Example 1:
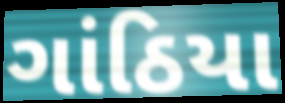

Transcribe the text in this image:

ગાંઠિયા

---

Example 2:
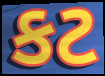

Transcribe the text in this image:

કટ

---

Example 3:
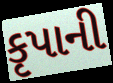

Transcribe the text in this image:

કૃપાની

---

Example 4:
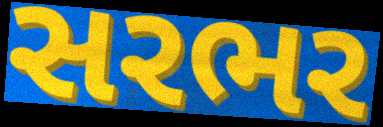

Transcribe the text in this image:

સરભર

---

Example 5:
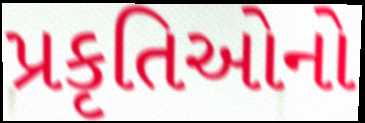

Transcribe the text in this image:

પ્રકૃતિઓનો